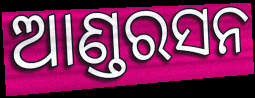
ଆଣ୍ଡରସନ